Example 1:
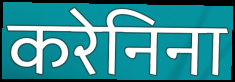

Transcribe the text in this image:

करेनिना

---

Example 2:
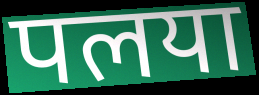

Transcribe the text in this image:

पलया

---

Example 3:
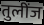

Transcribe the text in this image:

तुलींज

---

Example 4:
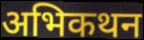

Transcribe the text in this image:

अभिकथन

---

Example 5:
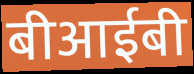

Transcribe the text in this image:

बीआईबी